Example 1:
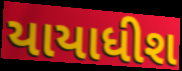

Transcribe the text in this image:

યાયાધીશ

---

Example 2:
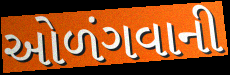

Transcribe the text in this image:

ઓળંગવાની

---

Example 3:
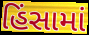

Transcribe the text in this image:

હિંસામાં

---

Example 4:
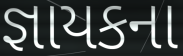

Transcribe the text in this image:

જ્ઞાયકના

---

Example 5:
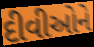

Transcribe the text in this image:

દીવીઓને